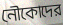
নৌকোদের